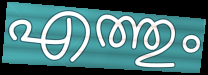
എത്തും